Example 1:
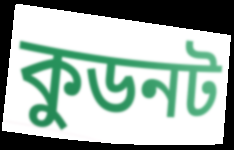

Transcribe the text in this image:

কুডনট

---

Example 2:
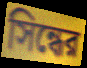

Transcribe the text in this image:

সিন্ধের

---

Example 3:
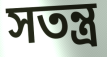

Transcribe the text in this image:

সতন্ত্র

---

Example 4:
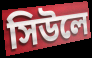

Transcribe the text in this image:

সিউলে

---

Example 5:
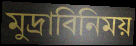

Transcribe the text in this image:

মুদ্রাবিনিময়